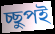
চ্ছুপই